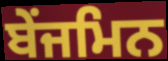
ਬੇਂਜਮਿਨ